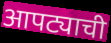
आपट्याची